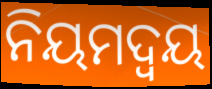
ନିୟମଦ୍ୱୟ